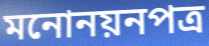
মনোনয়নপত্র